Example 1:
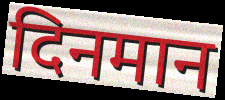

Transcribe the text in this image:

दिनमान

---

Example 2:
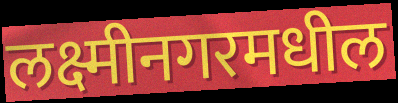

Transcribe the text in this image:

लक्ष्मीनगरमधील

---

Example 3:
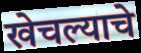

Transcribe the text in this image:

खेचल्याचे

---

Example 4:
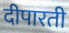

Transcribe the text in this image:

दीपारती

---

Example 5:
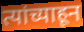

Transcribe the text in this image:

त्यांच्याहून